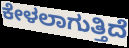
ಕೇಳಲಾಗುತ್ತಿದೆ